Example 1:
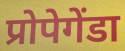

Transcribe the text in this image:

प्रोपेगेंडा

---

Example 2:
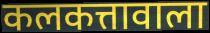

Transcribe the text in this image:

कलकत्तावाला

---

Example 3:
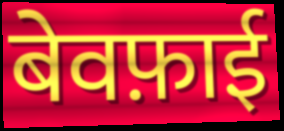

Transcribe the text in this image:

बेवफ़ाई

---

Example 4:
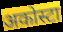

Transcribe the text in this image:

अकोस्टा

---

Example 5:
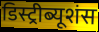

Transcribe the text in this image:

डिस्ट्रीब्यूशंस